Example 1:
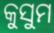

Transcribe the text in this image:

କୁସୁମ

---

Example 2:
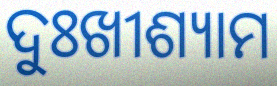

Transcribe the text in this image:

ଦୁଃଖୀଶ୍ୟାମ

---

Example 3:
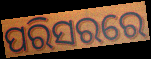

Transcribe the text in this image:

ପରିସରରେ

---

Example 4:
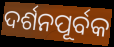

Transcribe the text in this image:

ଦର୍ଶନପୂର୍ବକ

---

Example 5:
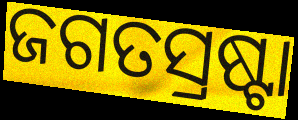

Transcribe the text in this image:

ଜଗତସ୍ରଷ୍ଟା